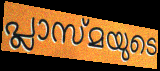
പ്ലാസ്മയുടെ